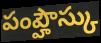
పంప్హౌస్కు